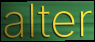
alter